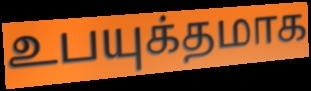
உபயுக்தமாக